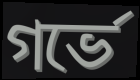
গর্ভে